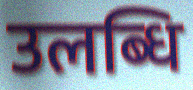
उलब्धि